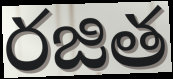
రజిత